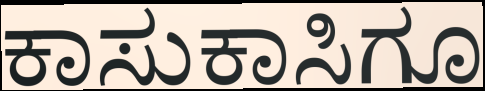
ಕಾಸುಕಾಸಿಗೂ